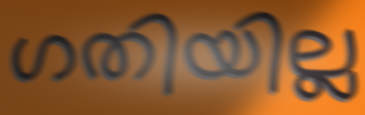
ഗതിയില്ല